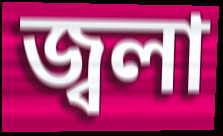
জ্বলা